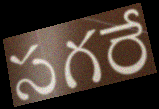
సగరే